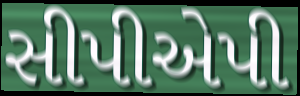
સીપીએપી